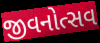
જીવનોત્સવ